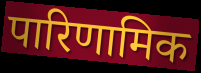
पारिणामिक